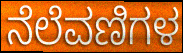
ನೆಲೆವಣಿಗಳ